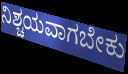
ನಿಶ್ಚಯವಾಗಬೇಕು